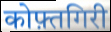
कोफ़्तगिरी